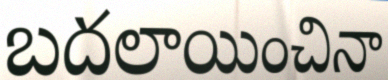
బదలాయించినా